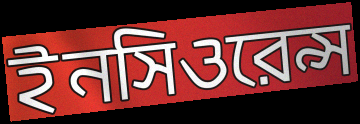
ইনসিওরেন্স